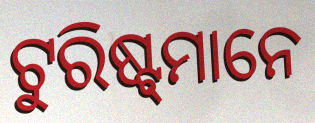
ଟୁରିଷ୍ଟ୍‍ମାନେ